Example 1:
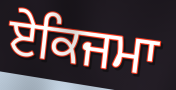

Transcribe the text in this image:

ਏਕਿਜਮਾ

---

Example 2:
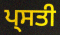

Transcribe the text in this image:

ਪ੍ਸਤੀ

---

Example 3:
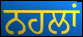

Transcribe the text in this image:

ਨਹਲਾਂ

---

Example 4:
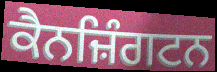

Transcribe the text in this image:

ਕੈਨਜ਼ਿੰਗਟਨ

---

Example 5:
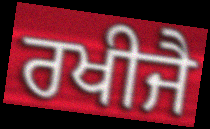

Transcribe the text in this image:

ਰਖੀਜੈ